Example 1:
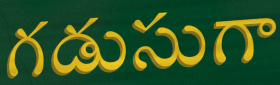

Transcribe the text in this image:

గడుసుగా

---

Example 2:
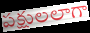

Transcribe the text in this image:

పక్షులలాగా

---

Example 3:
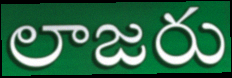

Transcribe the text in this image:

లాజరు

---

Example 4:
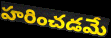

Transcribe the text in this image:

హరించడమే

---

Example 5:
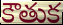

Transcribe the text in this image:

కౌతుక